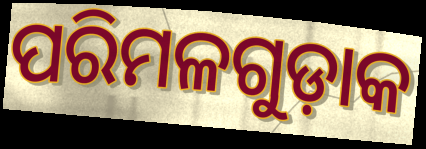
ପରିମଳଗୁଡ଼ାକ